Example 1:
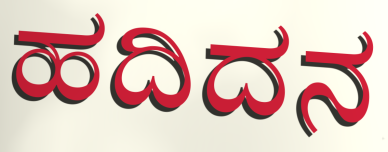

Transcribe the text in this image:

ಹದಿದನ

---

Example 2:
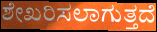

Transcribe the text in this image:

ಶೇಖರಿಸಲಾಗುತ್ತದೆ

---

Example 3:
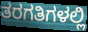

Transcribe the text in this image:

ತರಗತಿಗಳಲ್ಲಿ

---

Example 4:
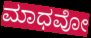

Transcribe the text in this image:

ಮಾಧವೋ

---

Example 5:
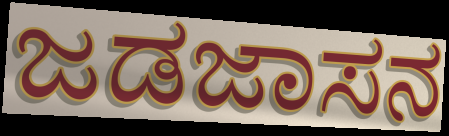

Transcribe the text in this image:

ಜಡಜಾಸನ